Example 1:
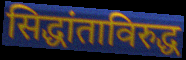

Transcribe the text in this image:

सिद्धांताविरुद्ध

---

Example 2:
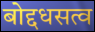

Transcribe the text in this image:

बोद्दधसत्व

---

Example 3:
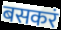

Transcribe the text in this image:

बसकरं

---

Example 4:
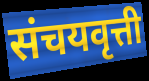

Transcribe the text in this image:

संचयवृत्ती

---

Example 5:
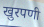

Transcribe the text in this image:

खुरपणी